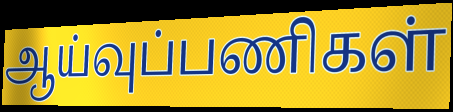
ஆய்வுப்பணிகள்